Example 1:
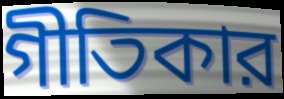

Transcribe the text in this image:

গীতিকার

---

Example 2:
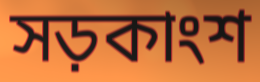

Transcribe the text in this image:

সড়কাংশ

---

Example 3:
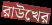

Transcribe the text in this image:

রাউখের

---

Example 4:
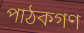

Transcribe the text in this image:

পাঠকগণ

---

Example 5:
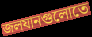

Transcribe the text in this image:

জলযানগুলোতে